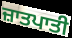
ਜ਼ਾਤਪਾਤੀ